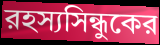
রহস্যসিন্ধুকের